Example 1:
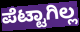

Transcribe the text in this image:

ಪೆಟ್ಟಾಗಿಲ್ಲ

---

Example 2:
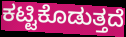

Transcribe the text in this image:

ಕಟ್ಟಿಕೊಡುತ್ತದೆ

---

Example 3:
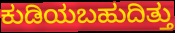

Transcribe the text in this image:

ಕುಡಿಯಬಹುದಿತ್ತು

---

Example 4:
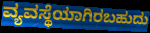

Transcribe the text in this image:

ವ್ಯವಸ್ಥೆಯಾಗಿರಬಹುದು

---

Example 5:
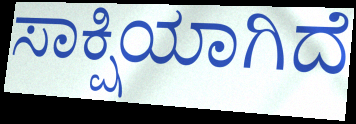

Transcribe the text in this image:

ಸಾಕ್ಷಿಯಾಗಿದೆ